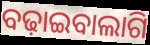
ବଢ଼ାଇବାଲାଗି